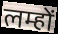
लम्हों